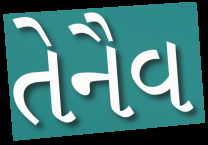
તેનૈવ